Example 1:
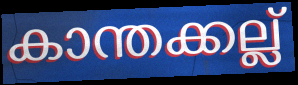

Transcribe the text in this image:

കാന്തക്കല്ല്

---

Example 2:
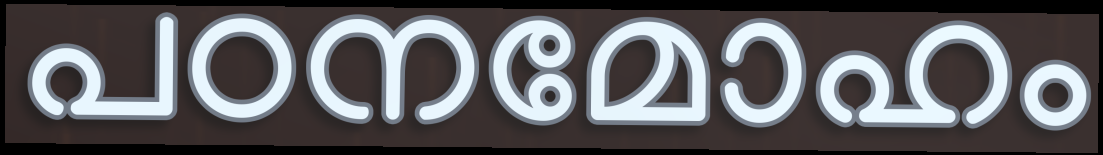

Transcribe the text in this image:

പഠനമോഹം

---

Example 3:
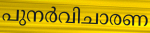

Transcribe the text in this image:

പുനർവിചാരണ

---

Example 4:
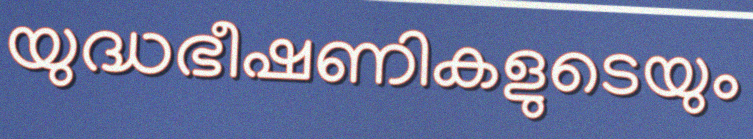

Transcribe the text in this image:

യുദ്ധഭീഷണികളുടെയും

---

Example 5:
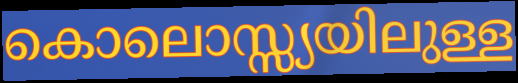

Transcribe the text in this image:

കൊലൊസ്സ്യയിലുള്ള